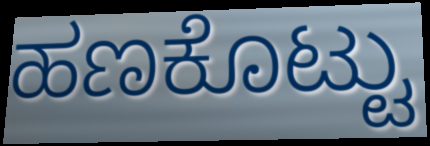
ಹಣಕೊಟ್ಟು